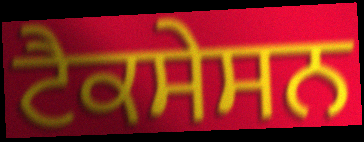
ਟੈਕਸੇਸਨ